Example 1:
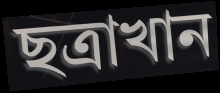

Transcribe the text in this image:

ছত্রাখান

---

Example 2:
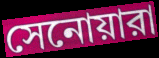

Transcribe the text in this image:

সেনোয়ারা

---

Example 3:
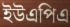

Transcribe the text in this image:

ইউএপিএ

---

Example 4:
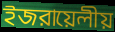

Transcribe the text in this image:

ইজরায়েলীয়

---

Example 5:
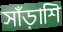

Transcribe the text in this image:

সাঁড়াশি